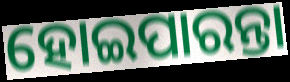
ହୋଇପାରନ୍ତା